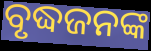
ବୃଦ୍ଧଜନଙ୍କ